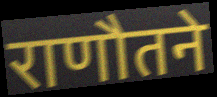
राणौतने